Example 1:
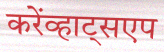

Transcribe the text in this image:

करेंव्हाट्सएप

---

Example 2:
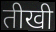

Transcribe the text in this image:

तीखी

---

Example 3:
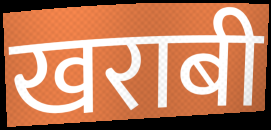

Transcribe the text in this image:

खराबी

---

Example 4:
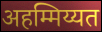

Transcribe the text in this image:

अहम्मिय्यत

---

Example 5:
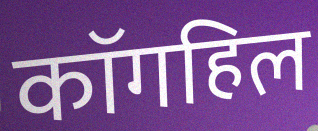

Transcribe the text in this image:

कॉगहिल